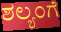
ಶಲ್ಯಂಗೆ